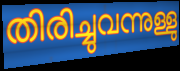
തിരിച്ചുവന്നുള്ളു